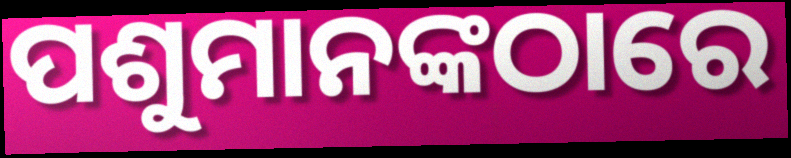
ପଶୁମାନଙ୍କଠାରେ